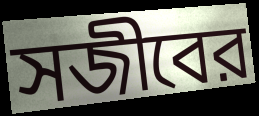
সজীবের